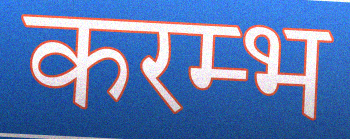
करम्भ